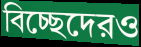
বিচ্ছেদেরও